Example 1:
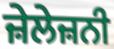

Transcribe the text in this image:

ਜ਼ੇਲੇਜ਼ਨੀ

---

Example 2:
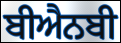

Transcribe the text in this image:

ਬੀਐਨਬੀ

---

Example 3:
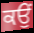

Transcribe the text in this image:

ਕਉਂ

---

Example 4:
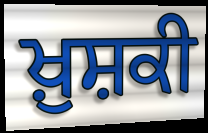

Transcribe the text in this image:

ਖ਼ੁਸ਼ਕੀ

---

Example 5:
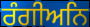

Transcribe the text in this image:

ਰੰਗੀਅਨਿ